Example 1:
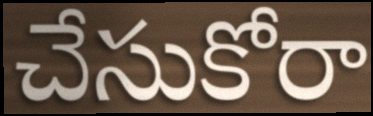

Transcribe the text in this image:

చేసుకోరా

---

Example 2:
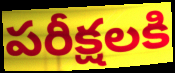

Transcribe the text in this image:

పరీక్షలకి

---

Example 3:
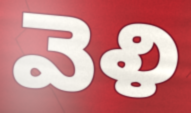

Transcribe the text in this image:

వెళి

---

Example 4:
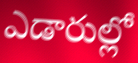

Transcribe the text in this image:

ఎడారుల్లో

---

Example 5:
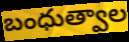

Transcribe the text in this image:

బంధుత్వాల